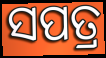
ସପତ୍ର